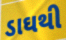
ડાઘથી